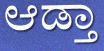
ಆಡ್ತಾ